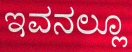
ಇವನಲ್ಲೂ